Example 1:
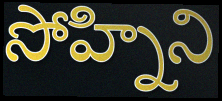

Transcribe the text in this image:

సోహ్నిని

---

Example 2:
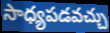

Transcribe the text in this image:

సాధ్యపడవచ్చు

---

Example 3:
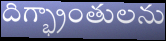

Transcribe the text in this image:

దిగ్భ్రాంతులను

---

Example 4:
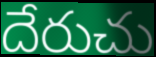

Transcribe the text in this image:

దేరుచు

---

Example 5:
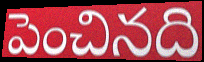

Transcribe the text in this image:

పెంచినది